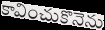
కావించుకొనెను